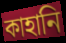
কাহানি